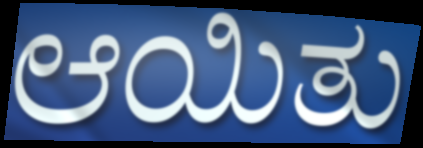
ಆಯಿತು